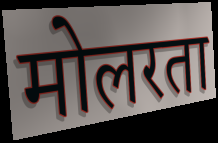
मोलरता